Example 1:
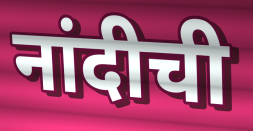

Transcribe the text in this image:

नांदीची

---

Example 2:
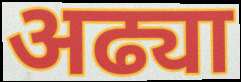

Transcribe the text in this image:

अढ्या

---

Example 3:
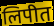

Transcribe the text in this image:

लिपीत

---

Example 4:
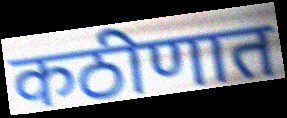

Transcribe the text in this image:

कठीणात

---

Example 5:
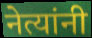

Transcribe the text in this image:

नेत्यांनी